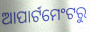
ଆପାର୍ଟମେଂଟରୁ